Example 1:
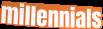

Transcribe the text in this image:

millennials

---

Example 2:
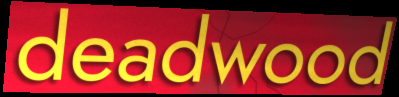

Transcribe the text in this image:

deadwood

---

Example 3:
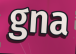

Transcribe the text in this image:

gna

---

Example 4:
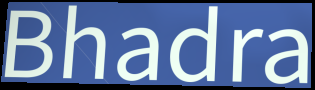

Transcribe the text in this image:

Bhadra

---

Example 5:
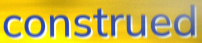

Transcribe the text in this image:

construed